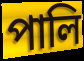
পালি